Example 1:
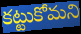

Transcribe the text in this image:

కట్టుకోమని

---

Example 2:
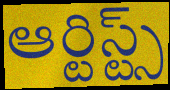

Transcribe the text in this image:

ఆర్టిస్ట్స్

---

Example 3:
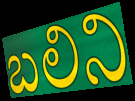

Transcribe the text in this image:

బలిని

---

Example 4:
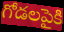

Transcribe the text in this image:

గోడలపైకి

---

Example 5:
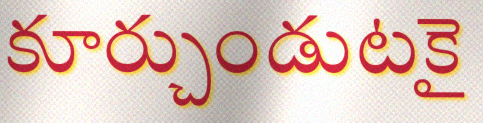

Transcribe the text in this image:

కూర్చుండుటకై